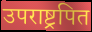
उपराष्ट्रपित